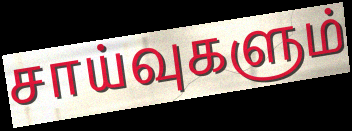
சாய்வுகளும்